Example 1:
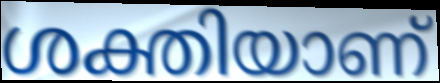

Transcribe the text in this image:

ശക്തിയാണ്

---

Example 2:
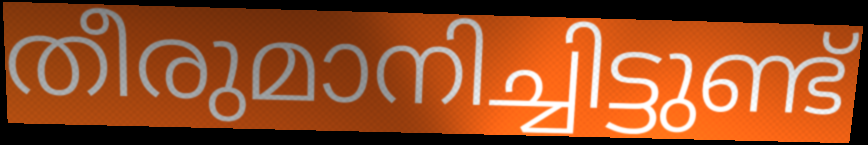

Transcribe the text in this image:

തീരുമാനിച്ചിട്ടുണ്ട്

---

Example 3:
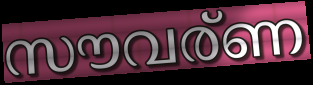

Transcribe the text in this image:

സൗവര്ണ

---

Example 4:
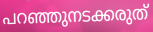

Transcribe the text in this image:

പറഞ്ഞുനടക്കരുത്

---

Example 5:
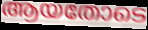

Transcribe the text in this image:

ആയതോടെ